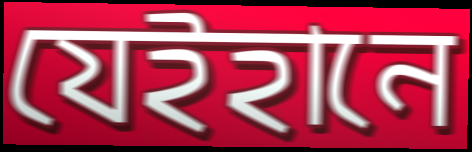
যেইহানে